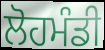
ਲੋਹਮੰਡੀ